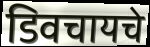
डिवचायचे